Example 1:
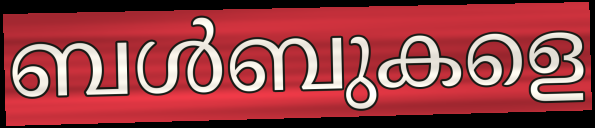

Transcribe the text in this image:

ബൾബുകളെ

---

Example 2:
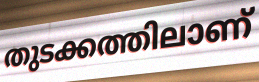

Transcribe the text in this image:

തുടക്കത്തിലാണ്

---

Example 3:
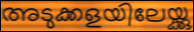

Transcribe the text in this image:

അടുക്കളയിലേയ്ക്കു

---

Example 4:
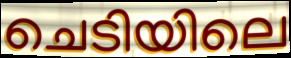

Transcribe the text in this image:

ചെടിയിലെ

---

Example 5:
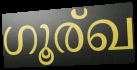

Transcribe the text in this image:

ഗൂര്ഖ